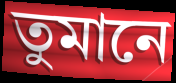
তুমানে